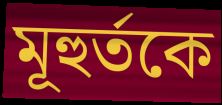
মূহুর্তকে